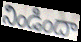
నిండిందా